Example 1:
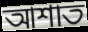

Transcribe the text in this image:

আশাত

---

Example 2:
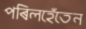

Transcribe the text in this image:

পৰিলহেঁতেন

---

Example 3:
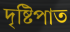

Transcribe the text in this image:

দৃষ্টিপাত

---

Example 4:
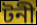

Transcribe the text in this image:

টনী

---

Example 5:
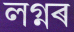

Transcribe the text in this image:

লগ্নৰ